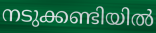
നടുക്കണ്ടിയിൽ